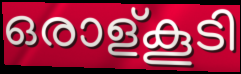
ഒരാള്കൂടി